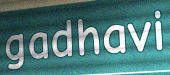
gadhavi